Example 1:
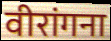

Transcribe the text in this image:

वीरांगना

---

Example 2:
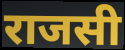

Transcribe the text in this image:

राजसी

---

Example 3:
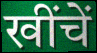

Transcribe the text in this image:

खींचें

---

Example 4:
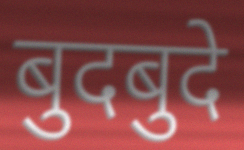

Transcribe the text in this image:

बुदबुदे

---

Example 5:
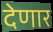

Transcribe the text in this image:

देणार